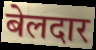
बेलदार